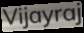
Vijayraj